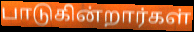
பாடுகின்றார்கள்